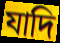
যাদি